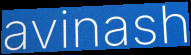
avinash